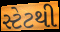
સ્ટેટથી